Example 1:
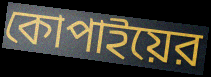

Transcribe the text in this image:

কোপাইয়ের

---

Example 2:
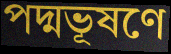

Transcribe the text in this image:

পদ্মভূষণে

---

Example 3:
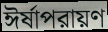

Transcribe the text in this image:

ঈর্ষাপরায়ণ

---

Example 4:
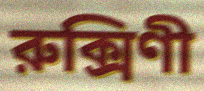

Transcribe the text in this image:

রুক্সিণী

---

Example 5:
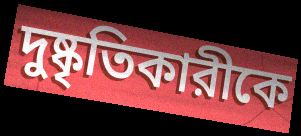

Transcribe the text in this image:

দুষ্কৃতিকারীকে